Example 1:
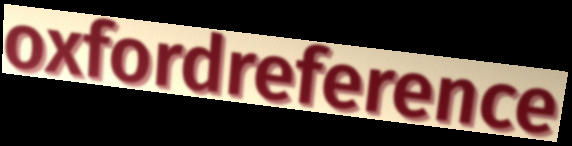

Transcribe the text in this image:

oxfordreference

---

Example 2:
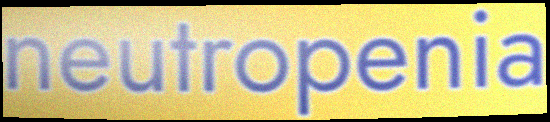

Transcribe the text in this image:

neutropenia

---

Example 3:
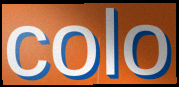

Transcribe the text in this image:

colo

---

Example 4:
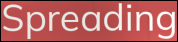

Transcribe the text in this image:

Spreading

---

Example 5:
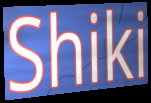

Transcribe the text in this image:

Shiki